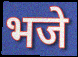
भजे